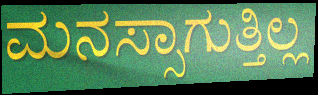
ಮನಸ್ಸಾಗುತ್ತಿಲ್ಲ